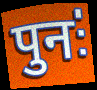
पुनः॑